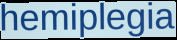
hemiplegia